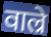
वाल्रे